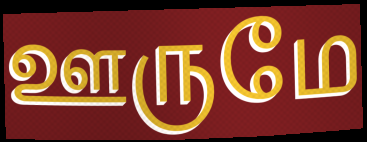
ஊருமே